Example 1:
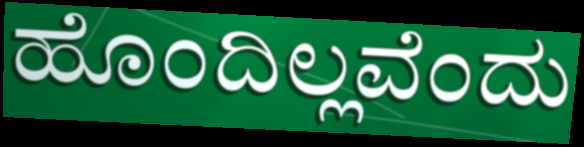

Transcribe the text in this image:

ಹೊಂದಿಲ್ಲವೆಂದು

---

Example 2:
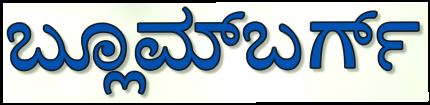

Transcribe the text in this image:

ಬ್ಲೂಮ್‌ಬರ್ಗ್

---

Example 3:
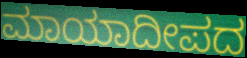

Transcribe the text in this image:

ಮಾಯಾದೀಪದ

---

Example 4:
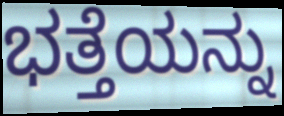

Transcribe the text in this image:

ಭತ್ತೆಯನ್ನು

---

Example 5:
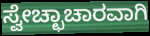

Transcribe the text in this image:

ಸ್ವೇಚ್ಛಾಚಾರವಾಗಿ